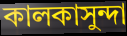
কালকাসুন্দা